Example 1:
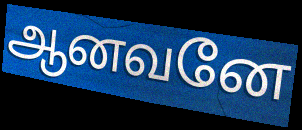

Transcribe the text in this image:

ஆனவனே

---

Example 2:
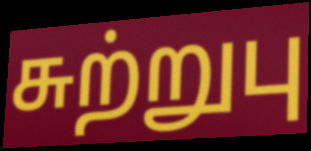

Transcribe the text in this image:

சுற்றுபு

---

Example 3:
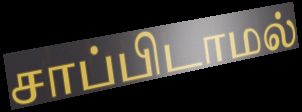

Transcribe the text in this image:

சாப்பிடாமல்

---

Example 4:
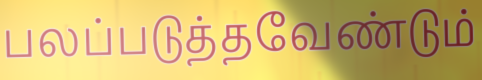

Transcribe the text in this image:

பலப்படுத்தவேண்டும்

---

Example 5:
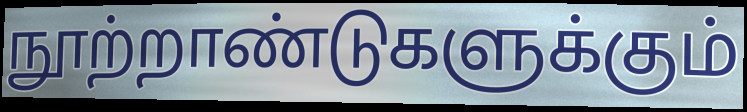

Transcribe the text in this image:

நூற்றாண்டுகளுக்கும்